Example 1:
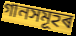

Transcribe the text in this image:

গানসমূহৰ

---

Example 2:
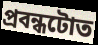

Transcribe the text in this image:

প্ৰবন্ধটোত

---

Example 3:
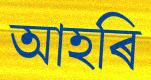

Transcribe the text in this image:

আহৰি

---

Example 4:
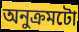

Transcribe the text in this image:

অনুক্ৰমটো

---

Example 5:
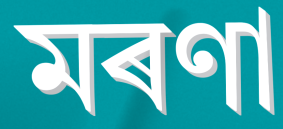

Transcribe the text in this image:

মৰণা